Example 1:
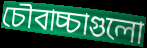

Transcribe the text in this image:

চৌবাচ্চাগুলো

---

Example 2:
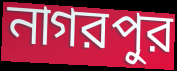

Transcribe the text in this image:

নাগরপুর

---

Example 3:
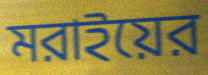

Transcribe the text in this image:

মরাইয়ের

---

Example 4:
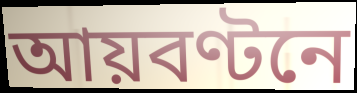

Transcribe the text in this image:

আয়বণ্টনে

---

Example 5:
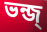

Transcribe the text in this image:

ভন্জ্